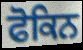
ਫੋਕਿਨ